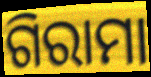
ଗିରାମା